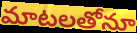
మాటలతోనూ